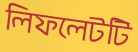
লিফলেটটি